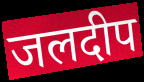
जलदीप